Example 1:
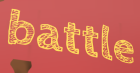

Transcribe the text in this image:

battle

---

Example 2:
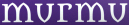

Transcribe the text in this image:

murmu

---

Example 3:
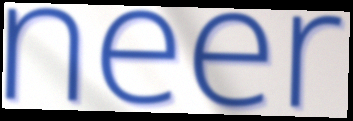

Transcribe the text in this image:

neer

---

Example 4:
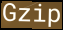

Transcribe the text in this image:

Gzip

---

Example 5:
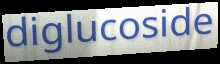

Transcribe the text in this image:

diglucoside